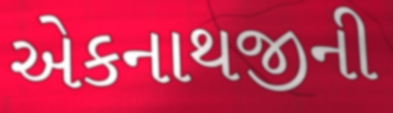
એકનાથજીની